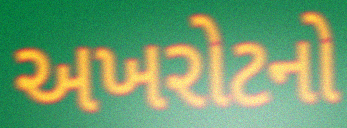
અખરોટનો